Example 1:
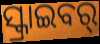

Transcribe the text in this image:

ସ୍କ୍ରାଇବର୍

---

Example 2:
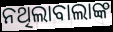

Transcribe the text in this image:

ନଥିଲାବାଲାଙ୍କ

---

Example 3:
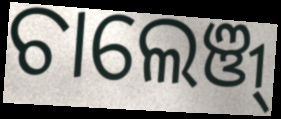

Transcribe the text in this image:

ଚାଲେଞ୍ଜ୍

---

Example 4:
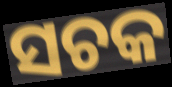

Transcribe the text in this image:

ସଚକ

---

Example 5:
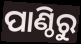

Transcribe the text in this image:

ପାଣ୍ଠିରୁ